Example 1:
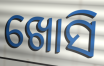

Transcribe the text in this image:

ଖୋସି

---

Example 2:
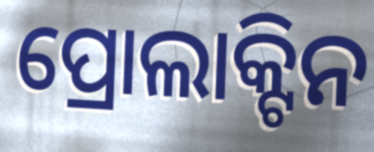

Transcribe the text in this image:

ପ୍ରୋଲାକ୍ଟିନ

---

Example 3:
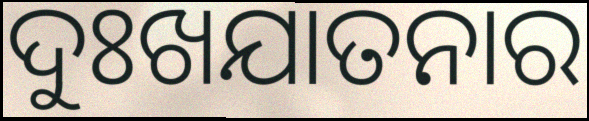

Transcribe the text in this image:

ଦୁଃଖଯାତନାର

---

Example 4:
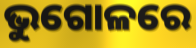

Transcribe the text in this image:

ଭୁଗୋଳରେ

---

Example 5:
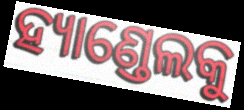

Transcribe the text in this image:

ହ୍ୟାଣ୍ଡେଲକୁ